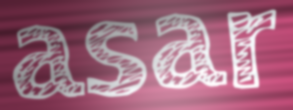
asar